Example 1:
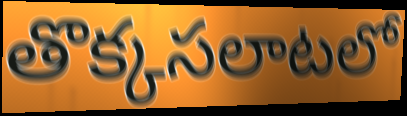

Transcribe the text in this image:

తొక్కసలాటలో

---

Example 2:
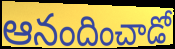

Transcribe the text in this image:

ఆనందించాడో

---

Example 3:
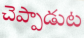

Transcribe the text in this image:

చెప్పాడుట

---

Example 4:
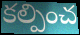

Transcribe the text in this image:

కల్పించ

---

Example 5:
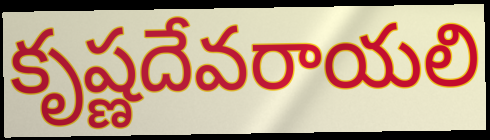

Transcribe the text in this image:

కృష్ణదేవరాయలి